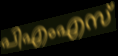
പിഎംഎസ്